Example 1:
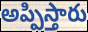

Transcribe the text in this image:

అప్పిస్తారు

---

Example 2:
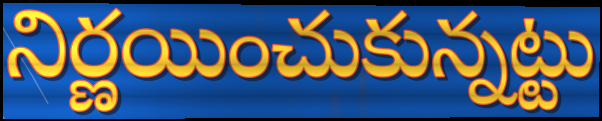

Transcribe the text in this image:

నిర్ణయించుకున్నట్టు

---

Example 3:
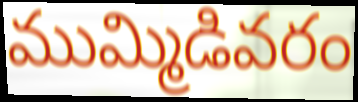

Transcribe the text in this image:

ముమ్మిడివరం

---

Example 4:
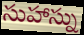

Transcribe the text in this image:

సుహాస్ను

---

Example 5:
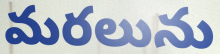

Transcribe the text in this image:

మరలును